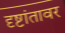
दृष्टांतावर